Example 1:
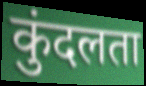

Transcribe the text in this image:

कुंदलता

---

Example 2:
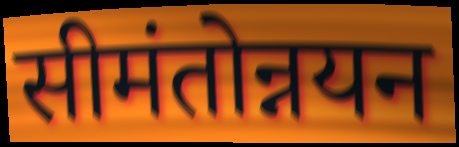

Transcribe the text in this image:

सीमंतोन्नयन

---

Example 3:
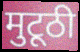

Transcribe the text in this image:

मुटूठी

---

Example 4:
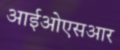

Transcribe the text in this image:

आईओएसआर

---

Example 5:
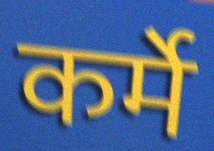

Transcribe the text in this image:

कर्मे